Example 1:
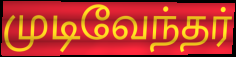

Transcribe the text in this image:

முடிவேந்தர்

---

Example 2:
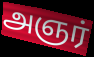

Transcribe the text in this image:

அஞர்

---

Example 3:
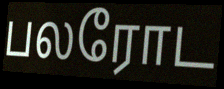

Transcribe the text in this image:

பலரோட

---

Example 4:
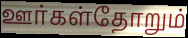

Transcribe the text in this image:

ஊர்கள்தோறும்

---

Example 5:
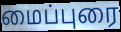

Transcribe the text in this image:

மைப்புரை